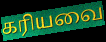
கரியவை